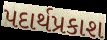
પદાર્થપ્રકાશ